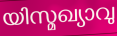
യിസ്മഖ്യാവു